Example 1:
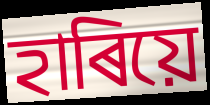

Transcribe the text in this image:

হাৰিয়ে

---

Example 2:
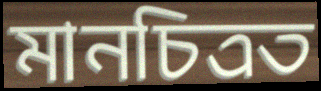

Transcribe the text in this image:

মানচিত্ৰত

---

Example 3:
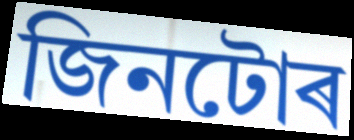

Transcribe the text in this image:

জিনটোৰ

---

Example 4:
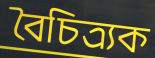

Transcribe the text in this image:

বৈচিত্ৰ্যক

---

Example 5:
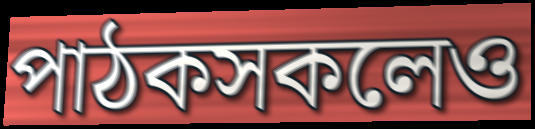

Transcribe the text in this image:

পাঠকসকলেও